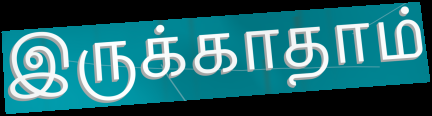
இருக்காதாம்